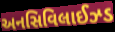
અનસિવિલાઈઝ્ડ